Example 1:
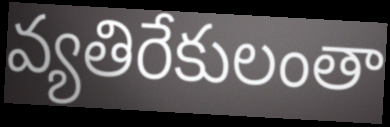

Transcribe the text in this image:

వ్యతిరేకులంతా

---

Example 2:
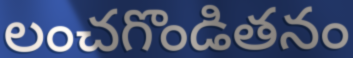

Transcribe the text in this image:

లంచగొండితనం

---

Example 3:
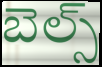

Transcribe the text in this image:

బెల్స్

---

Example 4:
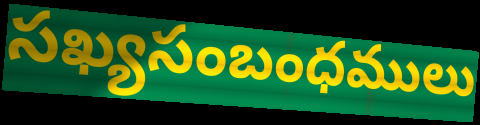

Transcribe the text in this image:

సఖ్యసంబంధములు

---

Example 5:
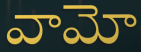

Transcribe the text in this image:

వామో